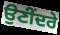
ਉਣੀਂਦਰੇ